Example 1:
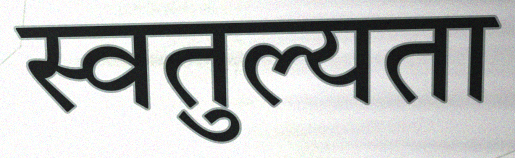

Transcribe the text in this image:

स्वतुल्यता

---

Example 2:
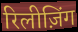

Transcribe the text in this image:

रिलीज़िंग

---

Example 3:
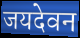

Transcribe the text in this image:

जयदेवन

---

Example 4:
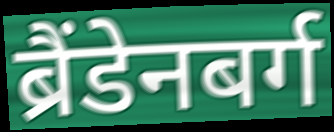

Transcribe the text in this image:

ब्रैंडेनबर्ग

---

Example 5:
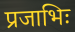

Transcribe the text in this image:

प्रजाभिः